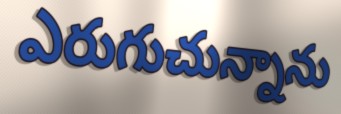
ఎరుగుచున్నాను